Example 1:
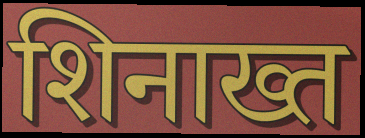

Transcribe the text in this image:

शिनाख्त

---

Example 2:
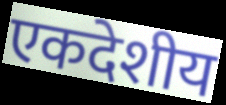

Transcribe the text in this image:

एकदेशीय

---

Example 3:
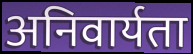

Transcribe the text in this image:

अनिवार्यता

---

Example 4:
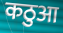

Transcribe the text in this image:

कठुआ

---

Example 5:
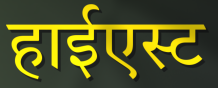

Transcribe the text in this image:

हाईएस्ट